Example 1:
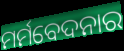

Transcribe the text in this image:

ମର୍ମବେଦନାର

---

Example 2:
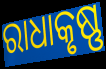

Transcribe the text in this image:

ରାଧାକୃଷ୍ଣ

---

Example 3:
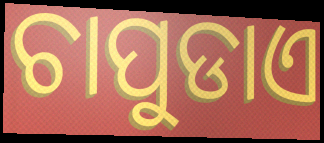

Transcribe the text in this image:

ଚାପୁଡାଏ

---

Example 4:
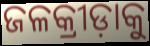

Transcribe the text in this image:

ଜଳକ୍ରୀଡ଼ାକୁ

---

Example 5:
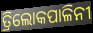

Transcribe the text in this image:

ତ୍ରିଲୋକପାଳିନୀ